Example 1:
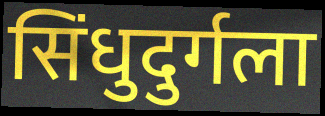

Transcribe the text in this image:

सिंधुदुर्गला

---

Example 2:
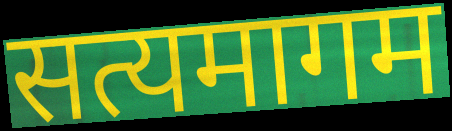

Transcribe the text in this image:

सत्यमागम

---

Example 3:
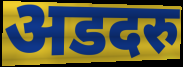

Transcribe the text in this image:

अडदरु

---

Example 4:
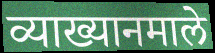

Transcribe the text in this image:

व्याख्यानमाले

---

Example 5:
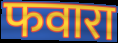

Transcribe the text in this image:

फवारा